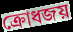
ক্রোধজয়